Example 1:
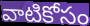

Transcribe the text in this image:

వాటికోసం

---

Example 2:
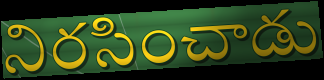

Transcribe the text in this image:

నిరసించాడు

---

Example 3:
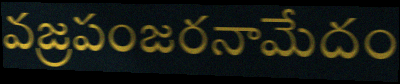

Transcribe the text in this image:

వజ్రపంజరనామేదం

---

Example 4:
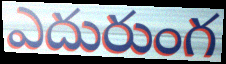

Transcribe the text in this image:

ఎదురుంగ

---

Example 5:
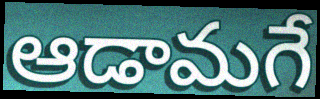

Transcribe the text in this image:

ఆడామగే